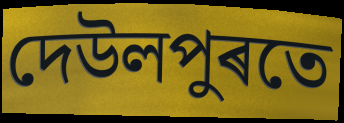
দেউলপুৰতে